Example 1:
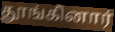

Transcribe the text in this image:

தூங்கினார்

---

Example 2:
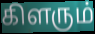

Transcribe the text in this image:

கிளரும்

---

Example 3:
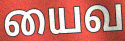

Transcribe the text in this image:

யைவ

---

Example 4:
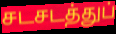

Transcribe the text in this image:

சடசடத்துப்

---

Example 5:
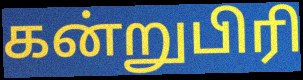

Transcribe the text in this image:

கன்றுபிரி